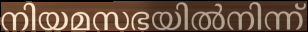
നിയമസഭയിൽനിന്ന്